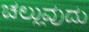
ಚಲ್ಲುವುದು